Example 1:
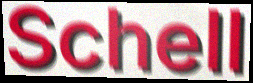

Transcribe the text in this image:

Schell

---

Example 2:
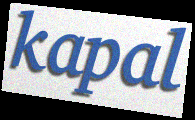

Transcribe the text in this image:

kapal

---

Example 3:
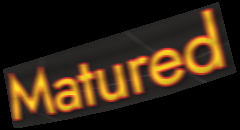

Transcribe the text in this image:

Matured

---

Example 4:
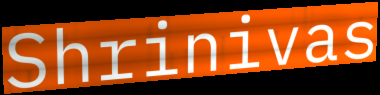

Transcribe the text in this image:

Shrinivas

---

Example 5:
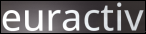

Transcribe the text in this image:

euractiv